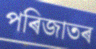
পৰিজাতৰ